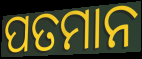
ପତମାନ